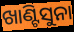
ଖାଣ୍ଟିସୁନା